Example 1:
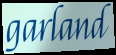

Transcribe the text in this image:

garland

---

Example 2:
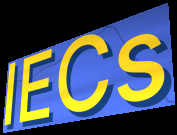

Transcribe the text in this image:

IECs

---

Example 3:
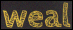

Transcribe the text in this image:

weal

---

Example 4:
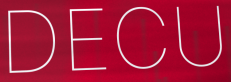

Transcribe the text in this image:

DECU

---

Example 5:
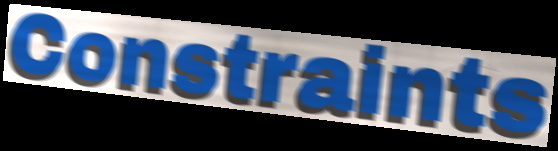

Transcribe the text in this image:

Constraints